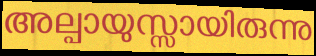
അല്പായുസ്സായിരുന്നു